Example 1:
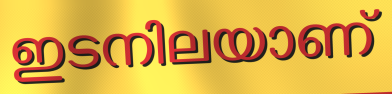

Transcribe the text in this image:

ഇടനിലയാണ്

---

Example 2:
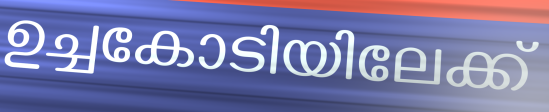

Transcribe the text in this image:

ഉച്ചകോടിയിലേക്ക്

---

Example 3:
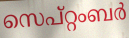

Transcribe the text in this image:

സെപ്റ്റംബർ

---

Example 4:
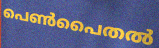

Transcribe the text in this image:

പെൺപൈതൽ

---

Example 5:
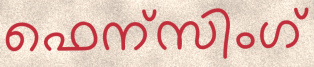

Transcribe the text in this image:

ഫെന്സിംഗ്